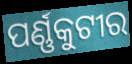
ପର୍ଣ୍ଣକୁଟୀର